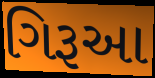
ગિરૂઆ